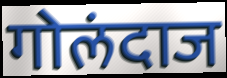
गोलंदाज